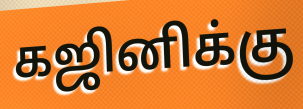
கஜினிக்கு